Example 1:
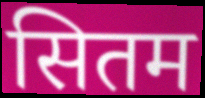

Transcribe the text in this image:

सितम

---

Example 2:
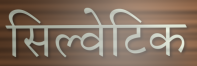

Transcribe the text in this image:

सिल्वेटिक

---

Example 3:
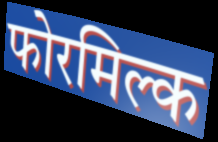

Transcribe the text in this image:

फोरमिल्क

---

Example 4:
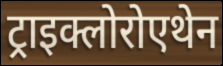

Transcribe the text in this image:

ट्राइक्लोरोएथेन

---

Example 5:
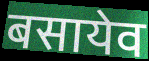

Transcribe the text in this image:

बसायेव